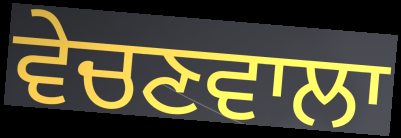
ਵੇਚਣਵਾਲਾ